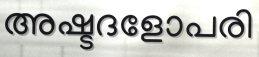
അഷ്ടദളോപരി